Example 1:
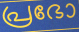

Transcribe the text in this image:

പ്രഭോ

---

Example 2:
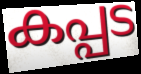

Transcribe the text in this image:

കപ്പട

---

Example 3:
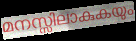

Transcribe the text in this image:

മനസ്സിലാകുകയും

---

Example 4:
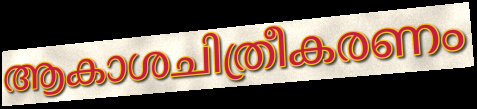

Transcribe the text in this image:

ആകാശചിത്രീകരണം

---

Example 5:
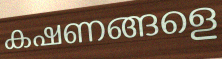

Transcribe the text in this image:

കഷണങ്ങളെ